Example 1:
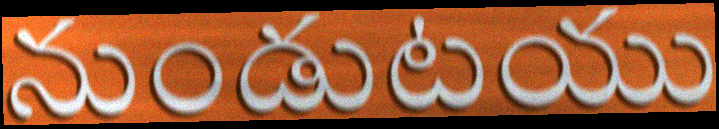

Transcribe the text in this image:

నుండుటయు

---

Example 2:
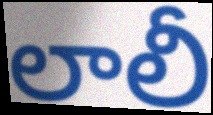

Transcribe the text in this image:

లాలీ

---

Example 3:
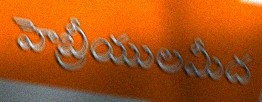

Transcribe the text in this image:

హెబ్రీయులమీద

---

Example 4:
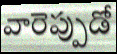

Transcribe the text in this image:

వారెప్పుడో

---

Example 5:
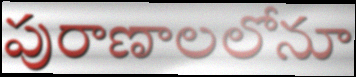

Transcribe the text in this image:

పురాణాలలోనూ